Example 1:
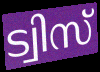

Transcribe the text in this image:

ട്വിസ്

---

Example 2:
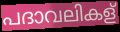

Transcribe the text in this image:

പദാവലികള്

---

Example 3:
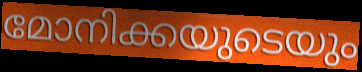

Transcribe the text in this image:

മോനിക്കയുടെയും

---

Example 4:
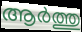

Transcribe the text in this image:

ആർത്തു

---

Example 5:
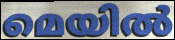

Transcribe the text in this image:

മെയിൽ